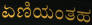
ಏಣಿಯಂತಹ